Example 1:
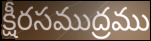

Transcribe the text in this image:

క్షీరసముద్రము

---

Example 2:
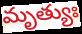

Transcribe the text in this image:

మృత్యుః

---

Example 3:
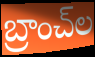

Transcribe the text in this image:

బ్రాంచ్‌ల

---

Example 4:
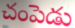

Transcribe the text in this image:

చంపెడు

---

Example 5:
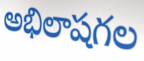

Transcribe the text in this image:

అభిలాషగల